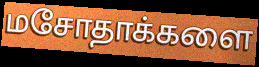
மசோதாக்களை